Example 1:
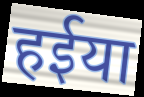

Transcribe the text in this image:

हईया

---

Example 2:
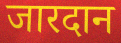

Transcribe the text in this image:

जारदान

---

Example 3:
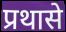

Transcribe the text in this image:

प्रथासे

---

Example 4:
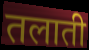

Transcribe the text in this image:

तलाती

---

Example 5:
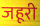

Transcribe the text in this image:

जहूरी